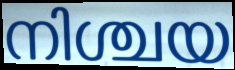
നിശ്ചയ